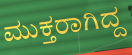
ಮುಕ್ತರಾಗಿದ್ದ